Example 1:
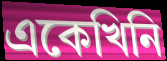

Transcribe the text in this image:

একেখিনি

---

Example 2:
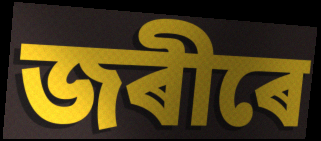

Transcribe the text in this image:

জৰীৰে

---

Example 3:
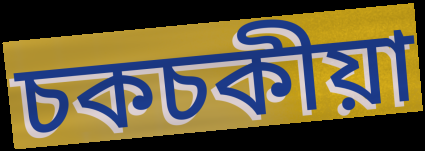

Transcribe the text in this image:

চকচকীয়া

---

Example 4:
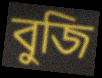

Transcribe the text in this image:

বুজি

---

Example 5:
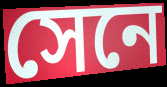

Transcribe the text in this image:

সেনে